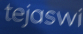
tejaswi